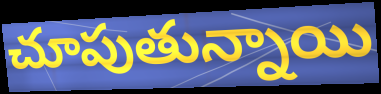
చూపుతున్నాయి